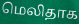
மெலிதாக